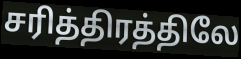
சரித்திரத்திலே